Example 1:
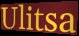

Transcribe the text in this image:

Ulitsa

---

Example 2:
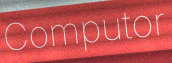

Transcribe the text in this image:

Computor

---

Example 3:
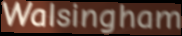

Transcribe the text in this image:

Walsingham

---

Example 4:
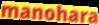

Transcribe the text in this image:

manohara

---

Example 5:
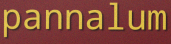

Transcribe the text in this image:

pannalum